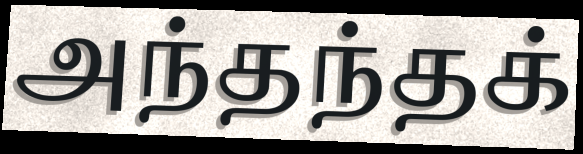
அந்தந்தக்